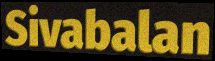
Sivabalan